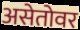
असेतोवर